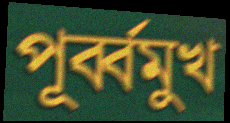
পূর্ব্বমুখ